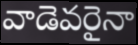
వాడెవరైనా